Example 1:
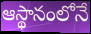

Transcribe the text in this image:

ఆస్థానంలోనే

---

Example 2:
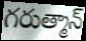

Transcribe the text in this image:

గరుత్మాన్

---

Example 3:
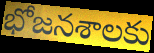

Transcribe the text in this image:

భోజనశాలకు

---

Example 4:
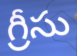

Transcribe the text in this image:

గ్రీసు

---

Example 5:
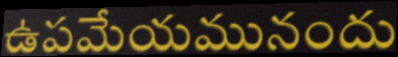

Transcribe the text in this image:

ఉపమేయమునందు